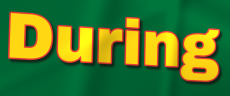
During